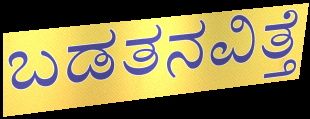
ಬಡತನವಿತ್ತೆ